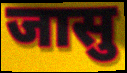
जासु